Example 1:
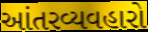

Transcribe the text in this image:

આંતરવ્યવહારો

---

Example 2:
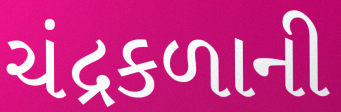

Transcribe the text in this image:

ચંદ્રકળાની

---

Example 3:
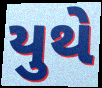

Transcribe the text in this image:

યુથે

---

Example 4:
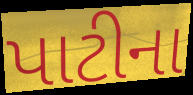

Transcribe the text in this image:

પાટીના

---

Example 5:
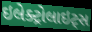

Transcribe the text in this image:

ઇલેક્ટ્રોલાઇટ્સ